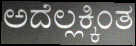
ಅದೆಲ್ಲಕ್ಕಿಂತ